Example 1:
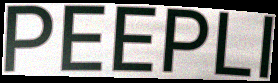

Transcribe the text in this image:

PEEPLI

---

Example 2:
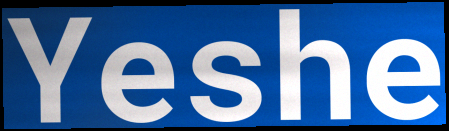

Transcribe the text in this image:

Yeshe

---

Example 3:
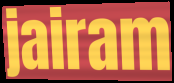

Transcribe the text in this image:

jairam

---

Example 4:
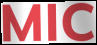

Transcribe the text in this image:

MIC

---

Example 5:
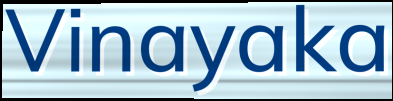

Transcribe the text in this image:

Vinayaka